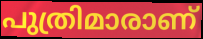
പുത്രിമാരാണ്